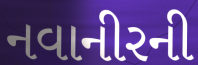
નવાનીરની